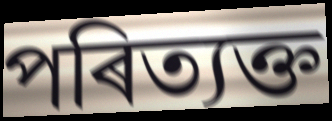
পৰিত্যক্ত